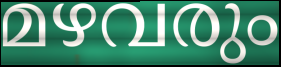
മഴവരും